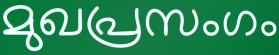
മുഖപ്രസംഗം